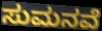
ಸುಮನವೆ